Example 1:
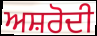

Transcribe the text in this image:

ਅਸ਼ਰੋਦੀ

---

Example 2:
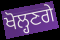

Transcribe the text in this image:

ਖੋਲ੍ਹਣਗੇ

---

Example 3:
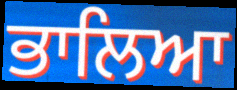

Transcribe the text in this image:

ਭਾਲਿਆ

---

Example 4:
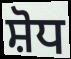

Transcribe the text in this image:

ਸ਼ੋਧ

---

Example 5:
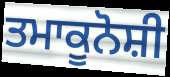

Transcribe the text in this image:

ਤਮਾਕੂਨੋਸ਼ੀ